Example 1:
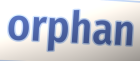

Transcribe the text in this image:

orphan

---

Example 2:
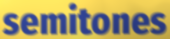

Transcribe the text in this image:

semitones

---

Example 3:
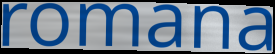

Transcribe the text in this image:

romana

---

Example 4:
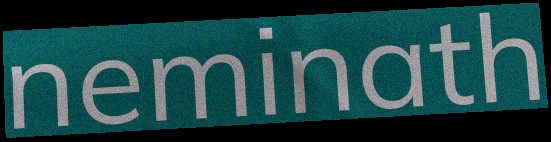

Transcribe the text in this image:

neminath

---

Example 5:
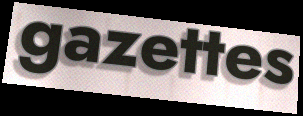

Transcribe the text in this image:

gazettes